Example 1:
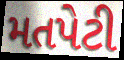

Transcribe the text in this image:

મતપેટી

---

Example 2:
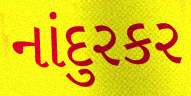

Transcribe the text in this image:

નાંદુરકર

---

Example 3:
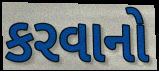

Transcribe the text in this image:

કરવાનો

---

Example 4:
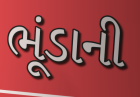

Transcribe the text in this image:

ભૂંડાની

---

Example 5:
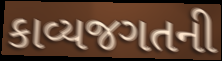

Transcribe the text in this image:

કાવ્યજગતની